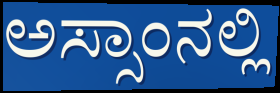
ಅಸ್ಸಾಂನಲ್ಲಿ